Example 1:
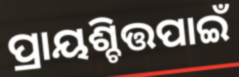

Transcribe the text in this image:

ପ୍ରାୟଶ୍ଚିତ୍ତପାଇଁ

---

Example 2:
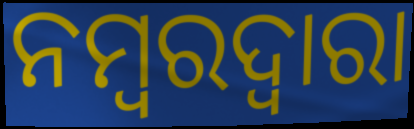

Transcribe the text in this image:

ନମ୍ବରଦ୍ୱାରା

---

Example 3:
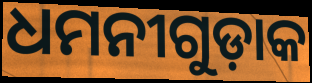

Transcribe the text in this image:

ଧମନୀଗୁଡ଼ାକ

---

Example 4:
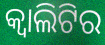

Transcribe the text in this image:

କ୍ୱାଲିଟିର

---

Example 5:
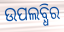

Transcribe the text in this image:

ଉପଲବ୍ଧିର